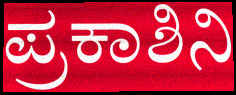
ಪ್ರಕಾಶಿನಿ